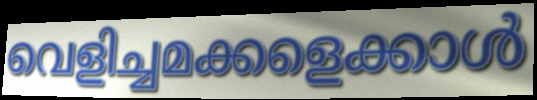
വെളിച്ചമക്കളെക്കാൾ